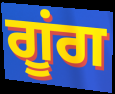
ਗੂਂਗ